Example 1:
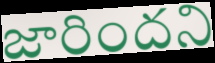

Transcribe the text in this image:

జారిందని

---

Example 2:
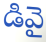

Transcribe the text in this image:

డివై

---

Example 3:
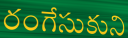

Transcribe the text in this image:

రంగేసుకుని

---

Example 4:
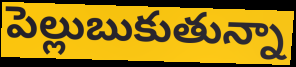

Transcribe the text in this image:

పెల్లుబుకుతున్నా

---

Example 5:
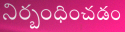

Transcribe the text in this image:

నిర్బంధించడం